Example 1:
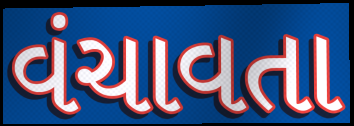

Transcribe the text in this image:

વંચાવતા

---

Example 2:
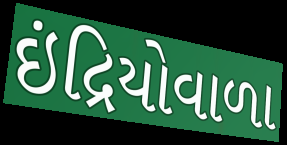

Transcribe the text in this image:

ઇંદ્રિયોવાળા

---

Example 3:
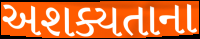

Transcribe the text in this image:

અશક્યતાના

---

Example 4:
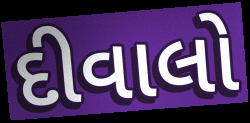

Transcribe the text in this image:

દીવાલો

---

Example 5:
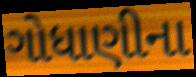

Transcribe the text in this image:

ગોધાણીના